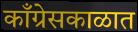
काँग्रेसकाळात